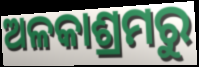
ଅଳକାଶ୍ରମରୁ